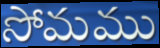
సోమము